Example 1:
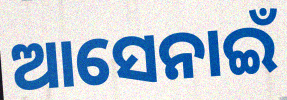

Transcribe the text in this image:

ଆସେନାଇଁ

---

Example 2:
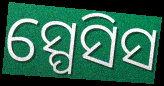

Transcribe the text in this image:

ସ୍ପେସିସ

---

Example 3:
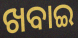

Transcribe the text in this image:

ଖବାଇ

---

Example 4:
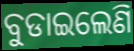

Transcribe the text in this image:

ବୁଡାଇଲେଣି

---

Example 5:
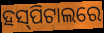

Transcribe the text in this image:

ହସ୍‍ପିଟାଲରେ